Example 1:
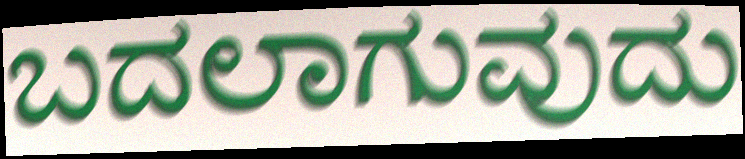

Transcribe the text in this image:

ಬದಲಾಗುವುದು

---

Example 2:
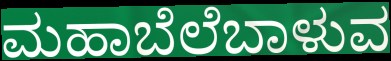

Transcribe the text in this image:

ಮಹಾಬೆಲೆಬಾಳುವ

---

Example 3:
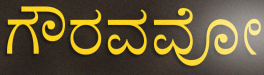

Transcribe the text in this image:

ಗೌರವವೋ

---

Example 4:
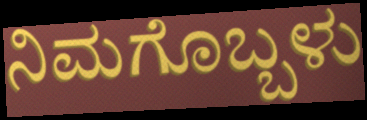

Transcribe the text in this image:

ನಿಮಗೊಬ್ಬಳು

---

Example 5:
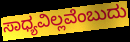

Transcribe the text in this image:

ಸಾಧ್ಯವಿಲ್ಲವೆಂಬುದು